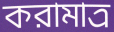
করামাত্র